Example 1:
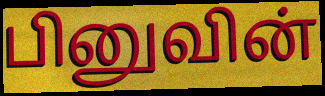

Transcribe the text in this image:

பினுவின்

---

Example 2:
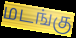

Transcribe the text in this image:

மடங்கு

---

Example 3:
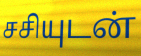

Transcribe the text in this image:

சசியுடன்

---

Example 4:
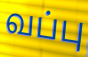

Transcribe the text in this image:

வப்பு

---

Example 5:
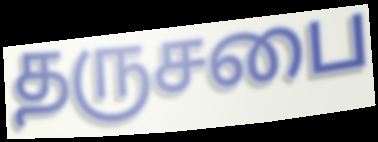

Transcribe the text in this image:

தருசபை